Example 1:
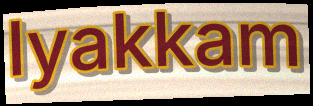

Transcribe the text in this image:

Iyakkam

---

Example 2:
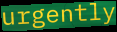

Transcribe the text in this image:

urgently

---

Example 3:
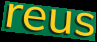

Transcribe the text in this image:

reus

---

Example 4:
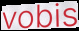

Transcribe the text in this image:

vobis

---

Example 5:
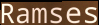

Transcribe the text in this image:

Ramses